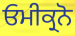
ਓਮੀਕ੍ਰਨੋ